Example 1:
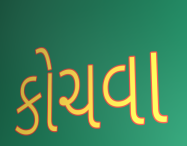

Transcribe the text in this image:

કોચવા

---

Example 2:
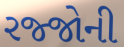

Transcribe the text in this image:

રજ્જોની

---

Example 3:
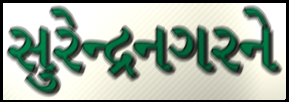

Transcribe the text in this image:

સુરેન્દ્રનગરને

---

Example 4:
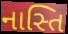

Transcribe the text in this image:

નાસ્તિ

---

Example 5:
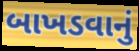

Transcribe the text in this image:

બાખડવાનું